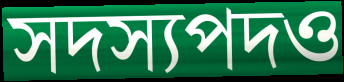
সদস্যপদও